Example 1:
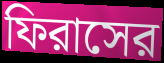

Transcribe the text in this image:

ফিরাসের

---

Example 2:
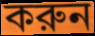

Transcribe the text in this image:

করুন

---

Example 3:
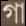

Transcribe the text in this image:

গা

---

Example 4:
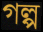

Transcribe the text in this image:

গল্প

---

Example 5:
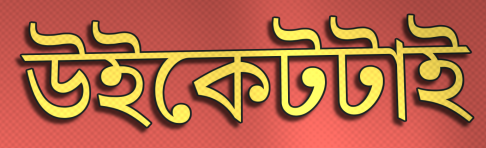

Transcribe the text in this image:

উইকেটটাই